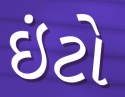
ઇંટો